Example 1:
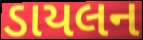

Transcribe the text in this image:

ડાયલન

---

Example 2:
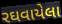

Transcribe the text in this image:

રઘવાયેલા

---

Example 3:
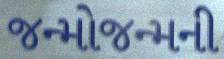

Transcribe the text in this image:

જન્મોજન્મની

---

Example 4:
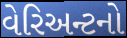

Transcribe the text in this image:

વેરિઅન્ટનો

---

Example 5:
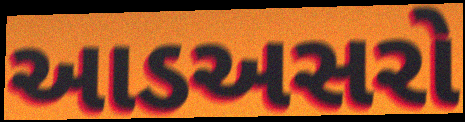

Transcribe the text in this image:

આડઅસરો